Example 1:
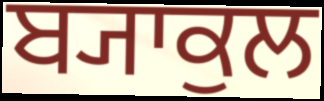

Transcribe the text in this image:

ਬ੍ਯਾਕੁਲ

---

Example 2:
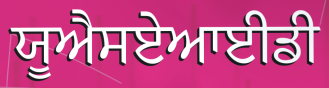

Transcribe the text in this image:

ਯੂਐਸਏਆਈਡੀ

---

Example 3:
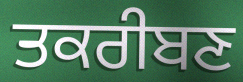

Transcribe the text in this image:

ਤਕਰੀਬਣ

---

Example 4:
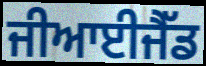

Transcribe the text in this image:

ਜੀਆਈਜੈੱਡ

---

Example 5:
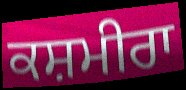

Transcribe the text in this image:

ਕਸ਼ਮੀਰਾ